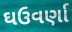
ઘઉવર્ણા